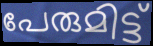
പേരുമിട്ട്